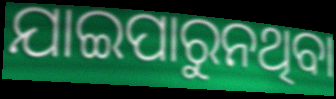
ଯାଇପାରୁନଥିବା